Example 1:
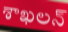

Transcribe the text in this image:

శాఖలన్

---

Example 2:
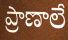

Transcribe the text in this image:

ప్రాణాలే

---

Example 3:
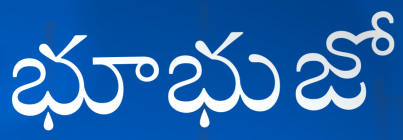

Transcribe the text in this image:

భూభుజో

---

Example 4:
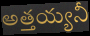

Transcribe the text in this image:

అత్తయ్యనీ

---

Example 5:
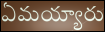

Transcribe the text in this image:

ఏమయ్యారు